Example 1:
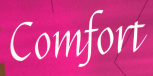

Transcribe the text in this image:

Comfort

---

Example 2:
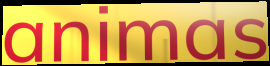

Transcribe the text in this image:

animas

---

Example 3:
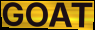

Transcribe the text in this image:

GOAT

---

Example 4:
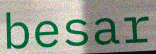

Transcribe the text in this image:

besar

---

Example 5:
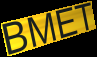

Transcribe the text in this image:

BMET